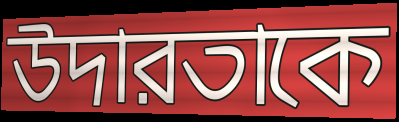
উদারতাকে